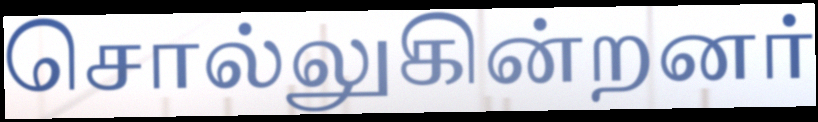
சொல்லுகின்றனர்